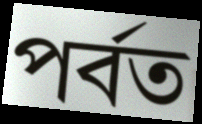
পর্বত